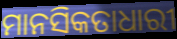
ମାନସିକତାଧାରୀ